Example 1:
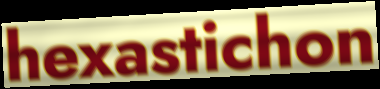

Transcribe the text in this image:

hexastichon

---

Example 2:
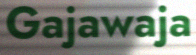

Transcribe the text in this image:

Gajawaja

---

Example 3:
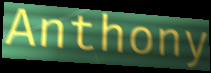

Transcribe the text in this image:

Anthony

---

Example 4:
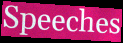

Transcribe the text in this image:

Speeches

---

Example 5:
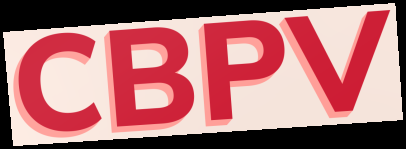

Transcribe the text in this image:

CBPV